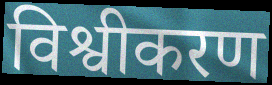
विश्वीकरण